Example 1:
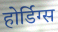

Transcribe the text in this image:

होर्डिग्स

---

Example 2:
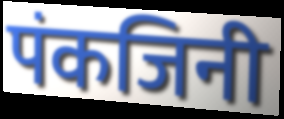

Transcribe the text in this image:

पंकजिनी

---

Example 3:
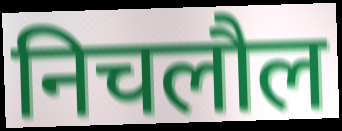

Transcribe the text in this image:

निचलौल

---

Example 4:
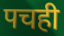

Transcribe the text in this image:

पचही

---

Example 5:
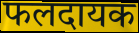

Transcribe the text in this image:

फलदायक